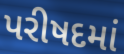
પરીષદમાં